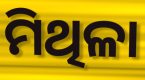
ମିଥିଳା